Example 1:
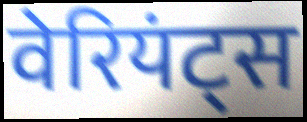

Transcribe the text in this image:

वेरियंट्स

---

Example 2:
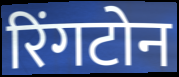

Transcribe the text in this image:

रिंगटोन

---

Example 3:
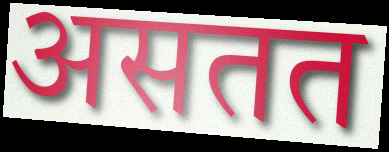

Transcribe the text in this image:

असतत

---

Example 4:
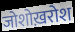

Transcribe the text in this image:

जोशोख़रोश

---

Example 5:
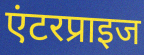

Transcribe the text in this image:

एंटरप्राइज